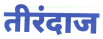
तीरंदाज